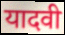
यादवी